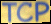
TCP